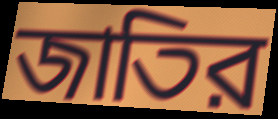
জাতির